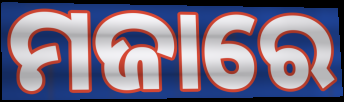
ମଜାରେ